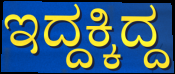
ಇದ್ದಕ್ಕಿದ್ದ